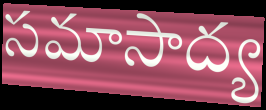
సమాసాద్య